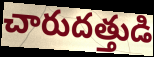
చారుదత్తుడి